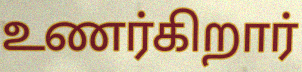
உணர்கிறார்